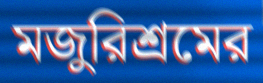
মজুরিশ্রমের